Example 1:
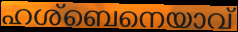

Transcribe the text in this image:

ഹശ്ബെനെയാവ്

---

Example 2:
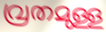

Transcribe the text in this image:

വ്രതമുള്ള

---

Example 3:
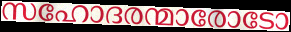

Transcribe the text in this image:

സഹോദരന്മാരോടോ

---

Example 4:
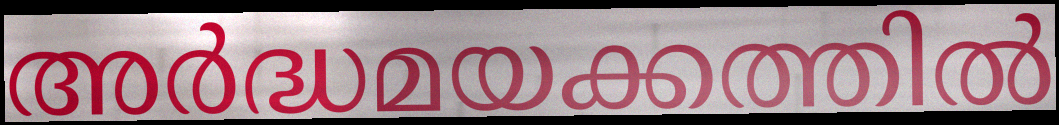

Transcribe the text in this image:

അർദ്ധമയക്കത്തിൽ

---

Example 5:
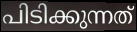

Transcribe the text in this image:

പിടിക്കുന്നത്